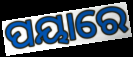
ପୟାରେ